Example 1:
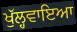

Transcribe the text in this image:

ਖੁੱਲ੍ਹਵਾਇਆ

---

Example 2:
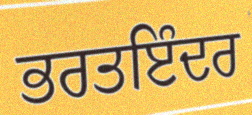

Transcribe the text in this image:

ਭਰਤਇੰਦਰ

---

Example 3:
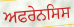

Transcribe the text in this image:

ਅਫਰੇਨਸਿਸ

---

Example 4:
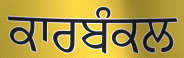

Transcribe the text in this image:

ਕਾਰਬੰਕਲ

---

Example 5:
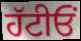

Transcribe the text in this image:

ਹੱਟੀਓਂ